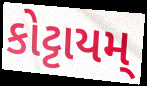
કોટ્ટાયમ્